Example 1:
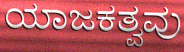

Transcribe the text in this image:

ಯಾಜಕತ್ವವು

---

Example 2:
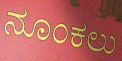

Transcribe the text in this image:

ನೂಂಕಲು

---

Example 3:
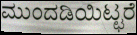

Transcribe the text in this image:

ಮುಂದಡಿಯಿಟ್ಟರೆ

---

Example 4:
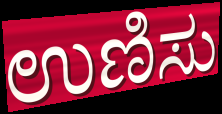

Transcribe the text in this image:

ಉಣಿಸು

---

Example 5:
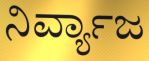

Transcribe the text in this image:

ನಿರ್ವ್ಯಾಜ